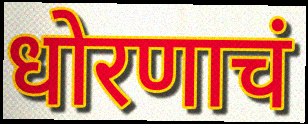
धोरणाचं